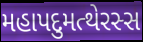
મહાપદુમત્થેરસ્સ